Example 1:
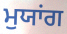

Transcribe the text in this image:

ਮੁਯਾਂਗ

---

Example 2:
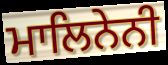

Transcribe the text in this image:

ਮਾਲਿਨੇਨੀ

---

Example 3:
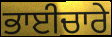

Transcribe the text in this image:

ਭਾਈਚਾਰੇ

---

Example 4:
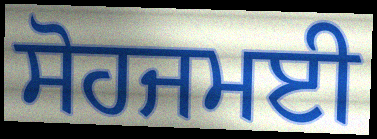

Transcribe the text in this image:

ਸੋਹਜਮਈ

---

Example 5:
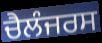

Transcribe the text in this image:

ਚੈਲੰਜਰਸ